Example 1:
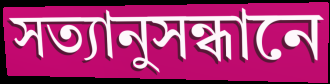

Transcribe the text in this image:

সত্যানুসন্ধানে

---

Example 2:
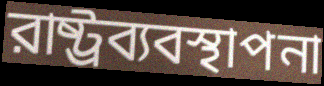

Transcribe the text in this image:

রাষ্ট্রব্যবস্থাপনা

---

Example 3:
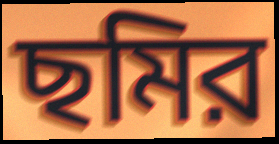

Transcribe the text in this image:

ছমির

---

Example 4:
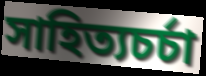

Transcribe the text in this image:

সাহিত্যচর্চা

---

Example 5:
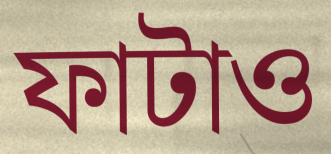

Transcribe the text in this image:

ফাটাও